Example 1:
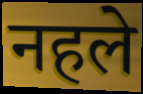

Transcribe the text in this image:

नहले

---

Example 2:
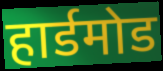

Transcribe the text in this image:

हार्डमोड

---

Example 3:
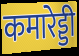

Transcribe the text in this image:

कमारेड्डी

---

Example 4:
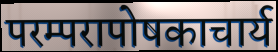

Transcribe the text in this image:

परम्परापोषकाचार्य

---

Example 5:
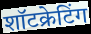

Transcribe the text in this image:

शॉटक्रेटिंग